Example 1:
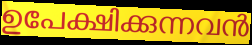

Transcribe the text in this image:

ഉപേക്ഷിക്കുന്നവൻ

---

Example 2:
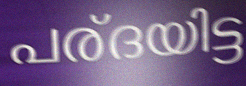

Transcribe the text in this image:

പര്ദയിട്ട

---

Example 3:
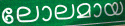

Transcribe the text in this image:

ലോലമായ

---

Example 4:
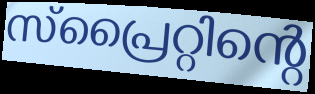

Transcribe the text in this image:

സ്പ്രൈറ്റിന്റെ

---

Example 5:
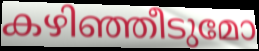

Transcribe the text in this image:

കഴിഞ്ഞീടുമോ